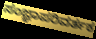
ಸಂಜ್ಞಾಪರಿವರ್ತಕ